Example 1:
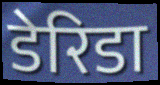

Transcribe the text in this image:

डेरिडा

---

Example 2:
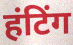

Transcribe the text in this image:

हंटिंग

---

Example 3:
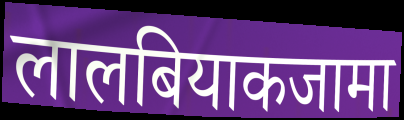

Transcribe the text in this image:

लालबियाकजामा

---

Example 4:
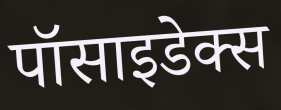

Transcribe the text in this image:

पॉसाइडेक्स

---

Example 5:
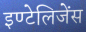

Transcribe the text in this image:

इण्टेलिजेंस